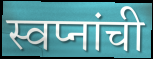
स्वप्नांची